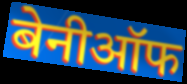
बेनीऑफ